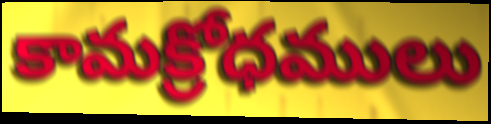
కామక్రోధములు